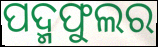
ପଦ୍ମଫୁଲର